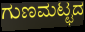
ಗುಣಮಟ್ಟದ